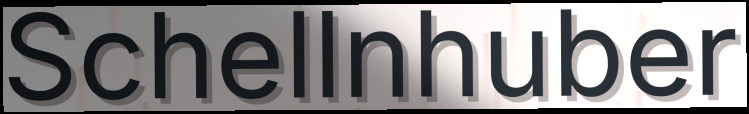
Schellnhuber